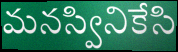
మనస్వినికేసి